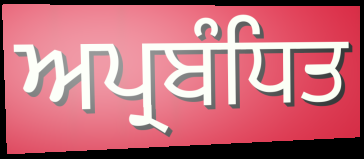
ਅਪ੍ਰਬੰਧਿਤ